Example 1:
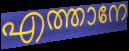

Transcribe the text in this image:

എത്താനേ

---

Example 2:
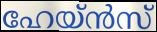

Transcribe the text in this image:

ഹേയ്ൻസ്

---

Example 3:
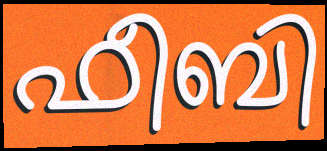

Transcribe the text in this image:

ഫീബി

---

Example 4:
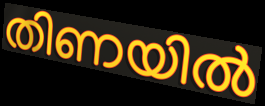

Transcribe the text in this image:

തിണയിൽ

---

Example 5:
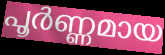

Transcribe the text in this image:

പൂർണ്ണമായ